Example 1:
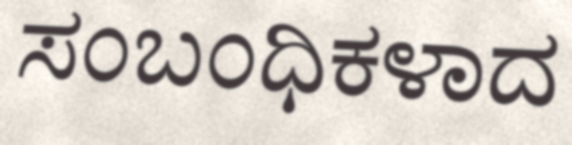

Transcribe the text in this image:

ಸಂಬಂಧಿಕಳಾದ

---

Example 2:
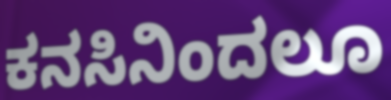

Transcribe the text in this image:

ಕನಸಿನಿಂದಲೂ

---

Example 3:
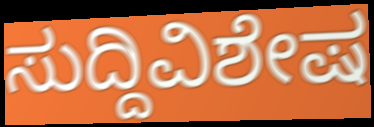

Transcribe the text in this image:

ಸುದ್ದಿವಿಶೇಷ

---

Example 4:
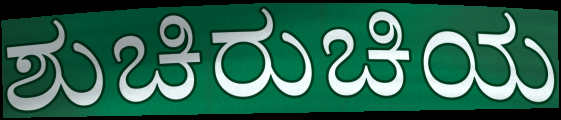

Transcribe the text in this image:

ಶುಚಿರುಚಿಯ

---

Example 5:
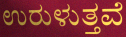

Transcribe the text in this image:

ಉರುಳುತ್ತವೆ